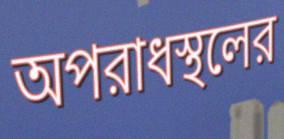
অপরাধস্থলের